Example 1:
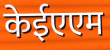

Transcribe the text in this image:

केईएएम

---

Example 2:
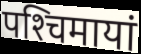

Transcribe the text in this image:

पश्चिमायां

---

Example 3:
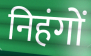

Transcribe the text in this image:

निहंगों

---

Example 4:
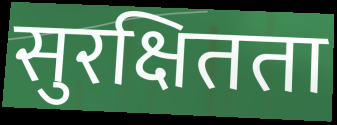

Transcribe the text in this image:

सुरक्षितता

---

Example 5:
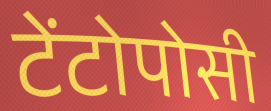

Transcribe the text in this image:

टेंटोपोसी